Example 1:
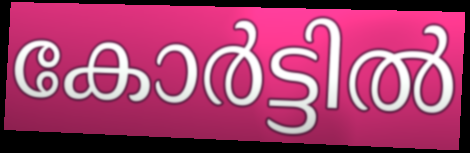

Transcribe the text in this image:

കോർട്ടിൽ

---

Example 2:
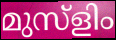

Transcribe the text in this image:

മുസ്ളിം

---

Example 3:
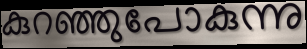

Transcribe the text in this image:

കുറഞ്ഞുപോകുന്നു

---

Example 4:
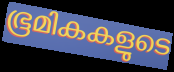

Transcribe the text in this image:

ഭൂമികകളുടെ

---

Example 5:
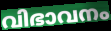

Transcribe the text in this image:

വിഭാവനം